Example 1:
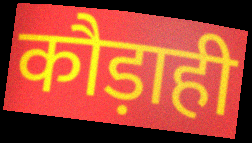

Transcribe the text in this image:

कौड़ाही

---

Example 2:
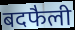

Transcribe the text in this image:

बदफैली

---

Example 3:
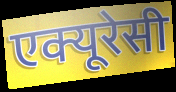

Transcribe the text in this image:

एक्यूरेसी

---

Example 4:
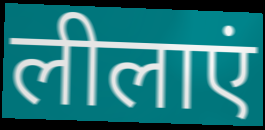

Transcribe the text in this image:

लीलाएं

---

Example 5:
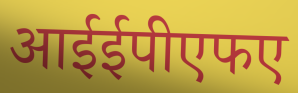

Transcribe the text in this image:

आईईपीएफए